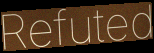
Refuted